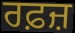
ਰਫ਼ਜ਼